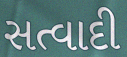
સત્વાદી